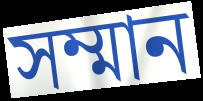
সম্মান